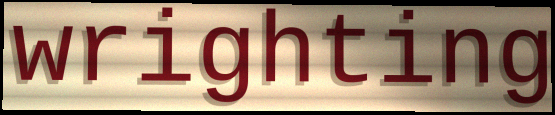
wrighting